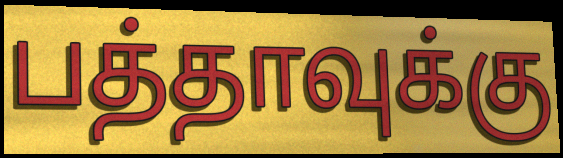
பத்தாவுக்கு